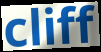
cliff